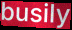
busily